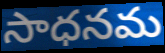
సాధనమ